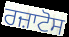
ਰਜ਼ਾਟੋਸ